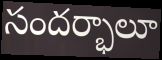
సందర్భాలూ